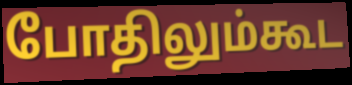
போதிலும்கூட